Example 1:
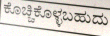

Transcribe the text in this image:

ಕೊಚ್ಚಿಕೊಳ್ಳಬಹುದು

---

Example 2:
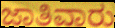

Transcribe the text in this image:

ಜಾತಿವಾರು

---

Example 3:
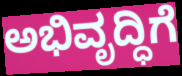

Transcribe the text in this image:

ಅಭಿವೃದ್ಧಿಗೆ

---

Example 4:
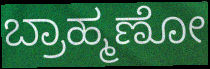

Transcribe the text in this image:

ಬ್ರಾಹ್ಮಣೋ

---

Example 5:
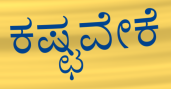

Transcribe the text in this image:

ಕಷ್ಟವೇಕೆ